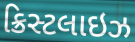
ક્રિસ્ટલાઇઝ